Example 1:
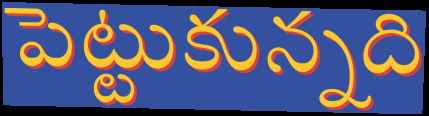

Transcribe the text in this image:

పెట్టుకున్నది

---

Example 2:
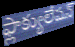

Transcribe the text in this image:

ఫ్లాక్యులేషన్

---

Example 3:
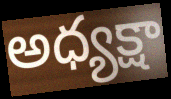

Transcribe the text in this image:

అధ్యక్షా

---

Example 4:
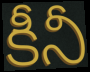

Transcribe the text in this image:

కీనీ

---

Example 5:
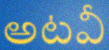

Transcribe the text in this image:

అటవీ